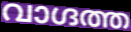
വാഗ്ദത്ത